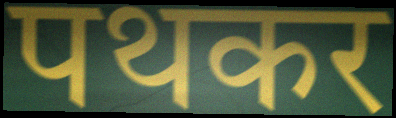
पथकर